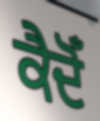
ਕੈਦੋਁ